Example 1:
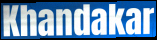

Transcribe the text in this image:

Khandakar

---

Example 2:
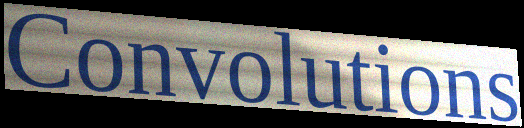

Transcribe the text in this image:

Convolutions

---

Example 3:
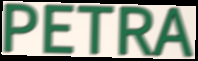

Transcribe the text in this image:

PETRA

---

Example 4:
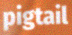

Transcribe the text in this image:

pigtail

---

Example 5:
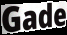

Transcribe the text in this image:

Gade